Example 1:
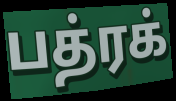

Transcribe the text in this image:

பத்ரக்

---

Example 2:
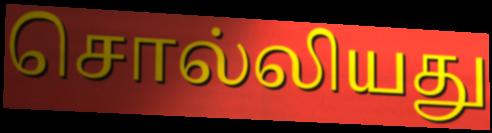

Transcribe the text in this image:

சொல்லியது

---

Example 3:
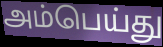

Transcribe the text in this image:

அம்பெய்து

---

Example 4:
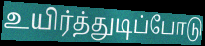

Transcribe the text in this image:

உயிர்த்துடிப்போடு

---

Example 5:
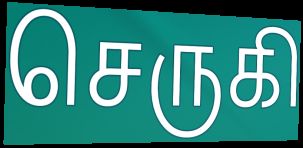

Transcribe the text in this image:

செருகி